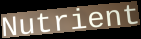
Nutrient